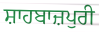
ਸ਼ਾਹਬਾਜ਼ਪੁਰੀ